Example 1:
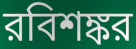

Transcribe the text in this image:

রবিশঙ্কর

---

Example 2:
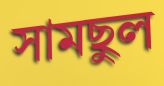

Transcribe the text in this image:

সামছুল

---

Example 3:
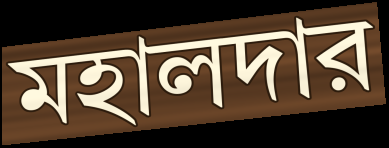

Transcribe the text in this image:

মহালদার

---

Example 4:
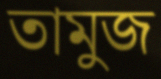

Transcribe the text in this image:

তামুজ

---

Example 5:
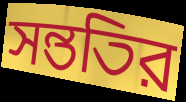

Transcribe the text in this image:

সন্ততির